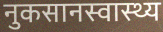
नुकसानस्वास्थ्य